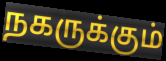
நகருக்கும்